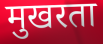
मुखरता